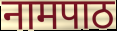
नामपाठ